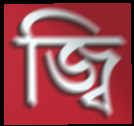
জ্বি